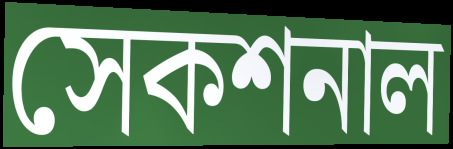
সেকশনাল